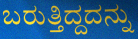
ಬರುತ್ತಿದ್ದದನ್ನು